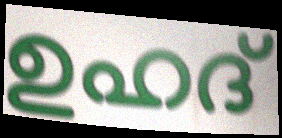
ഉഹദ്